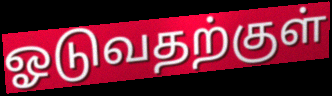
ஓடுவதற்குள்